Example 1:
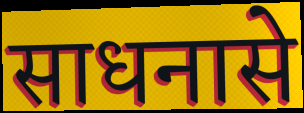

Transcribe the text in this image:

साधनासे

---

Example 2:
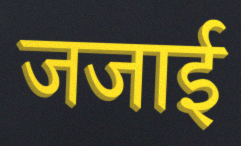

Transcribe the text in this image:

जजाई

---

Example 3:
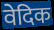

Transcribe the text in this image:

वेदिक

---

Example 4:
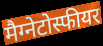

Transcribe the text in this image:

मैग्नेटोस्फीयर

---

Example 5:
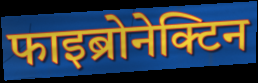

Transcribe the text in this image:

फाइब्रोनेक्टिन